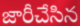
జారీచేసిన